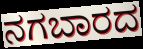
ನಗಬಾರದ